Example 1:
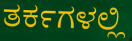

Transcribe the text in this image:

ತರ್ಕಗಳಲ್ಲಿ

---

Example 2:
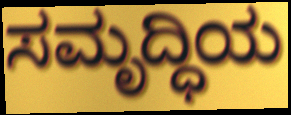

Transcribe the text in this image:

ಸಮೃದ್ಧಿಯ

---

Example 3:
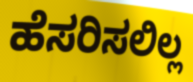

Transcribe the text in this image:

ಹೆಸರಿಸಲಿಲ್ಲ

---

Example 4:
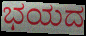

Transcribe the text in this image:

ಭಯದ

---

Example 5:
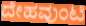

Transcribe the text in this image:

ದೇಹವುಂಟೆ